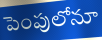
పెంపులోనూ